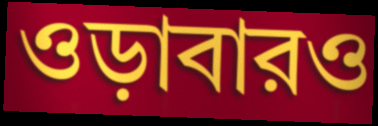
ওড়াবারও